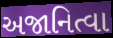
અજાનિત્વા